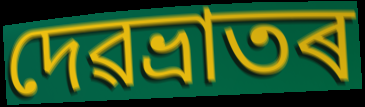
দেৱভ্ৰাতৰ